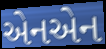
એનએન